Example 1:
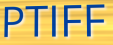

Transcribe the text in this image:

PTIFF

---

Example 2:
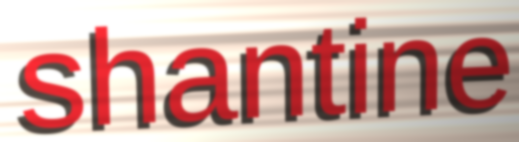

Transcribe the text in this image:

shantine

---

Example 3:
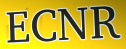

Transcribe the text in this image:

ECNR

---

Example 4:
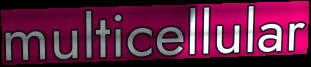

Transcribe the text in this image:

multicellular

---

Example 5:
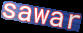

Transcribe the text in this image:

sawar